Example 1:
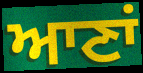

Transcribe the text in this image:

ਆਣਾਂ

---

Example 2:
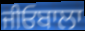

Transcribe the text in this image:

ਜੀਓਬਾਲਾ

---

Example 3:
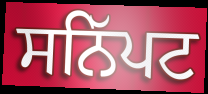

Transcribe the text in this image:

ਸਨਿੱਪਟ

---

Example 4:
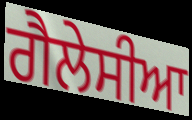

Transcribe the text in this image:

ਗੈਲੇਸੀਆ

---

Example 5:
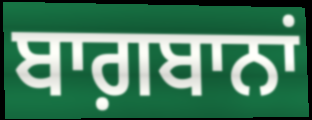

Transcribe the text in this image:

ਬਾਗ਼ਬਾਨਾਂ